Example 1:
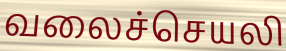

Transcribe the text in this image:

வலைச்செயலி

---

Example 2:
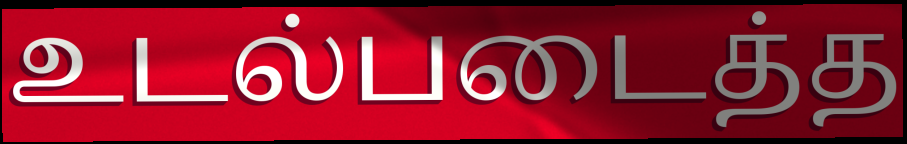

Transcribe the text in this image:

உடல்படைத்த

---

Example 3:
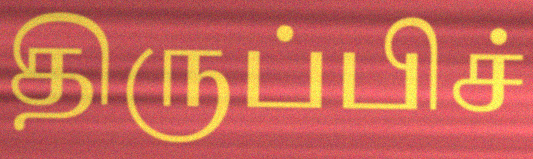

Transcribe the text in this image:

திருப்பிச்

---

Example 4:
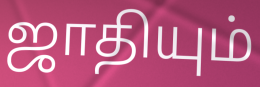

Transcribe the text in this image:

ஜாதியும்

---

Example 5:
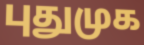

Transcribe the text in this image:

புதுமுக